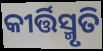
କୀର୍ତ୍ତିସ୍ମୃତି